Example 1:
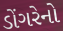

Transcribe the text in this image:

ડોંગરેનો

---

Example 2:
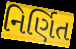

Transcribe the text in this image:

નિર્ણિત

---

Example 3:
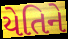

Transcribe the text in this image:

યેતિને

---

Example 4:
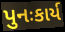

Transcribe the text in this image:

પુનઃકાર્ય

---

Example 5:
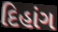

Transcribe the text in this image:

દિહાંગ